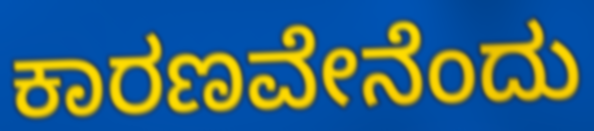
ಕಾರಣವೇನೆಂದು